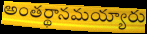
అంతర్థానమయ్యారు